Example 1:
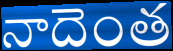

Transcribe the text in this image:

నాదెంత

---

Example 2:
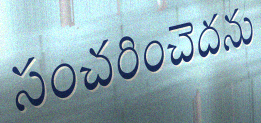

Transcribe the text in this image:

సంచరించెదను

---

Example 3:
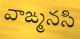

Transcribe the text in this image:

వాఙ్మనసి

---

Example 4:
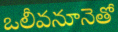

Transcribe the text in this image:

ఒలీవనూనెతో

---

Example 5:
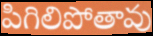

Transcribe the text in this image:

పిగిలిపోతావు